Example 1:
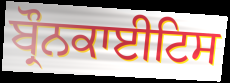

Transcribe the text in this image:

ਬ੍ਰੌਨਕਾਈਟਿਸ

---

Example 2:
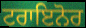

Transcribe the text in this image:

ਟਰਾਇਨੋਰ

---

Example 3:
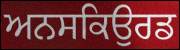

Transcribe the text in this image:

ਅਨਸਕਿਉਰਡ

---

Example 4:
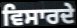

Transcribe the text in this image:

ਵਿਸਾਰਦੇ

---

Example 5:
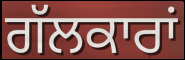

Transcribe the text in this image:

ਗੱਲਕਾਰਾਂ